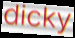
dicky